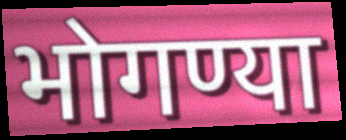
भोगण्या